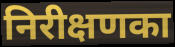
निरीक्षणका